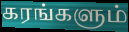
கரங்களும்